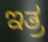
ಇತ್ರ